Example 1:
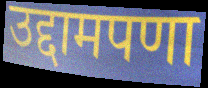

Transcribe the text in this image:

उद्दामपणा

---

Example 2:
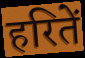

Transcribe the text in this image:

हरितें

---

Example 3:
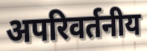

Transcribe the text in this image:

अपरिवर्तनीय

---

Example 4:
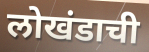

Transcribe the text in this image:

लोखंडाची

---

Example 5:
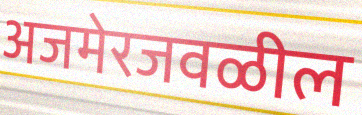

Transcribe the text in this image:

अजमेरजवळील